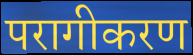
परागीकरण